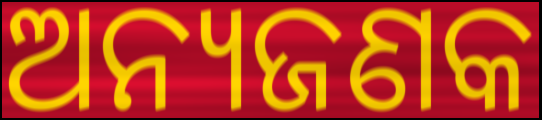
ଅନ୍ୟଜଣକ